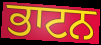
ਭਾਟਨ